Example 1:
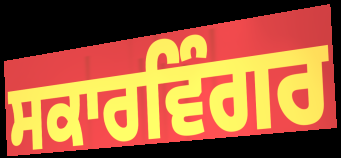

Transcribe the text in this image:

ਸਕਾਰਵਿੰਗਰ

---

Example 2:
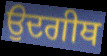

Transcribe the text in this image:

ਉਦਗੀਥ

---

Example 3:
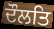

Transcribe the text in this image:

ਦੌਲਤਿ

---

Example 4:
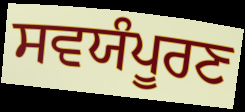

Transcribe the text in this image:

ਸਵਯੰਪੂਰਣ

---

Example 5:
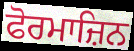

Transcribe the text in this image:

ਫੋਰਮਾਜ਼ਿਨ